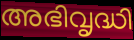
അഭിവൃദ്ധി